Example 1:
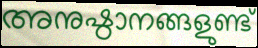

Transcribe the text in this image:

അനുഷ്ഠാനങ്ങളുണ്ട്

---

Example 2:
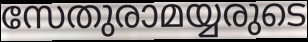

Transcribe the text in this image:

സേതുരാമയ്യരുടെ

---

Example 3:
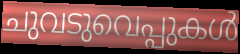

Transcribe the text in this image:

ചുവടുവെപ്പുകൾ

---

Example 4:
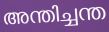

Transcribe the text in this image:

അന്തിച്ചന്ത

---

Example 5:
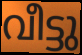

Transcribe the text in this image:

വീട്ടു